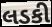
લડકી